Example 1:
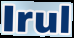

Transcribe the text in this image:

Irul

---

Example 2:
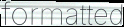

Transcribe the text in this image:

formatted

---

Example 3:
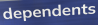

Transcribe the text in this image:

dependents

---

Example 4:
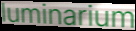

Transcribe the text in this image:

luminarium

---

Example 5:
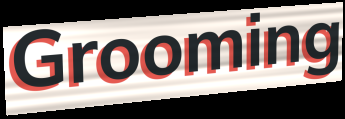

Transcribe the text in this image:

Grooming